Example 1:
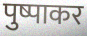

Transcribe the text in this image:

पुष्पाकर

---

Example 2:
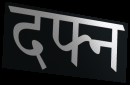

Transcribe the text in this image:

दफ्न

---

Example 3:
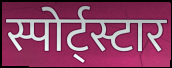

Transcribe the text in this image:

स्पोर्ट्स्टार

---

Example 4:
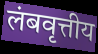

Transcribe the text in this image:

लंबवृत्तीय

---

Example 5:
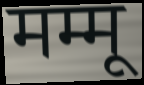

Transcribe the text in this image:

मम्मू